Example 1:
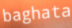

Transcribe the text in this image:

baghata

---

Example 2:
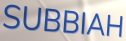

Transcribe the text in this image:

SUBBIAH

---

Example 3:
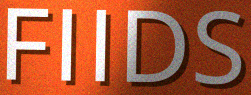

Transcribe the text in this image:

FIIDS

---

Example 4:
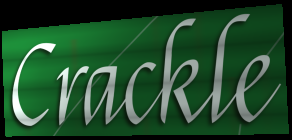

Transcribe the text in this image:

Crackle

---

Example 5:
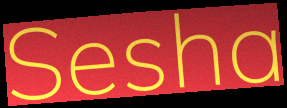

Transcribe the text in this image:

Sesha